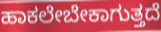
ಹಾಕಲೇಬೇಕಾಗುತ್ತದೆ